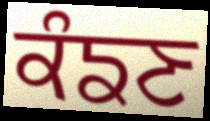
ਕੰਙਣ